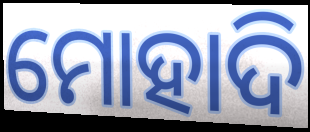
ମୋହାଦି